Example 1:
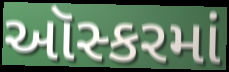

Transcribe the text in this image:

ઑસ્કરમાં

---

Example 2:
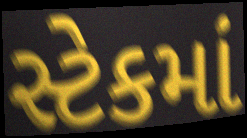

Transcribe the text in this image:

સ્ટેકમાં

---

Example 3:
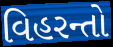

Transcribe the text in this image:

વિહરન્તો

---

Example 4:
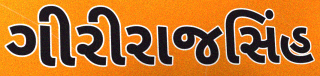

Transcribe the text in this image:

ગીરીરાજસિંહ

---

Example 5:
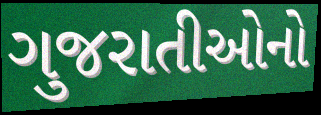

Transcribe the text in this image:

ગુજરાતીઓનો